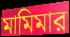
মামিমার